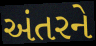
અંતરને